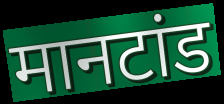
मानटांड